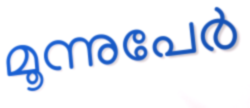
മൂന്നുപേർ